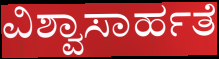
ವಿಶ್ವಾಸಾರ್ಹತೆ